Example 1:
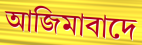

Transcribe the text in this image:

আজিমাবাদে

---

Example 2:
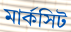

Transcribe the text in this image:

মার্কসিট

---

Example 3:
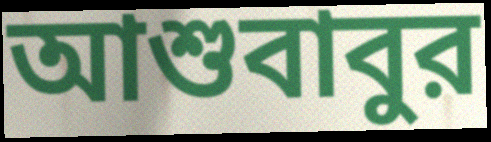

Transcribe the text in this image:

আশুবাবুর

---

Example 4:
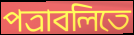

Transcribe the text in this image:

পত্রাবলিতে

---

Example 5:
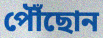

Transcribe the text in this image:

পৌঁছোন